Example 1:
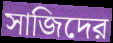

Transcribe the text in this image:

সাজিদের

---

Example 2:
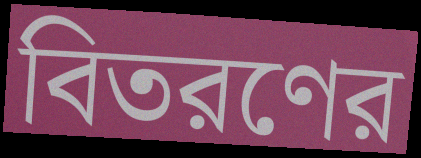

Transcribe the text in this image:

বিতরণের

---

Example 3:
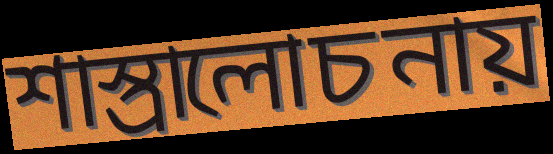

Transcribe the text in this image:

শাস্ত্রালোচনায়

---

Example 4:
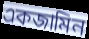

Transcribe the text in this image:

একজামিন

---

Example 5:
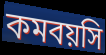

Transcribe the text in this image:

কমবয়সি